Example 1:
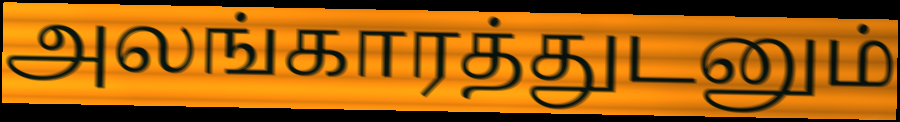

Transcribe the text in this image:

அலங்காரத்துடனும்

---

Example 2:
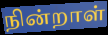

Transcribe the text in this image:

நின்றாள்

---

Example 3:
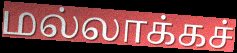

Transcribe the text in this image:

மல்லாக்கச்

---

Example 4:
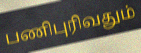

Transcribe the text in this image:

பணிபுரிவதும்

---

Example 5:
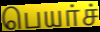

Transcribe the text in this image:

பெயர்ச்